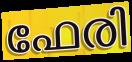
ഫേരി